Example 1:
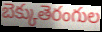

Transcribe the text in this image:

బెక్కుతెరంగుల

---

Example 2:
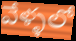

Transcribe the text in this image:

వేళ్ళలో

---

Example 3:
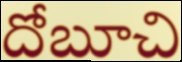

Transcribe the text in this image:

దోబూచి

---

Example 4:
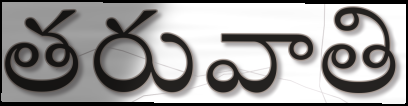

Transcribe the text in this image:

తరువాతి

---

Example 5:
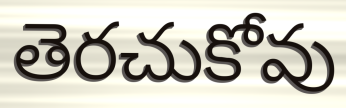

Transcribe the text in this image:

తెరచుకోవు